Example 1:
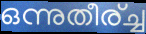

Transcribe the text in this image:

ഒന്നുതീര്ച്ച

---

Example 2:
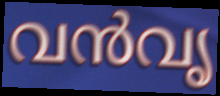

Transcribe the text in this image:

വൻവൃ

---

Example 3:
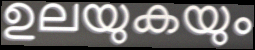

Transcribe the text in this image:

ഉലയുകയും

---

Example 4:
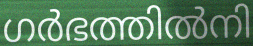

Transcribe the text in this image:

ഗർഭത്തിൽനി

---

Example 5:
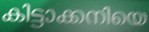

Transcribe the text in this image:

കിട്ടാക്കനിയെ